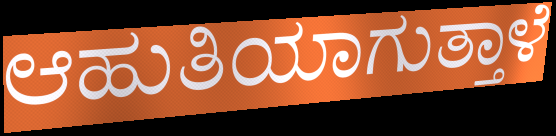
ಆಹುತಿಯಾಗುತ್ತಾಳೆ